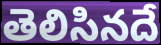
తెలిసినదే